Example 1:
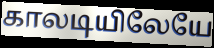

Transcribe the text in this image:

காலடியிலேயே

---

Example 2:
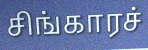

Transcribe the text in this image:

சிங்காரச்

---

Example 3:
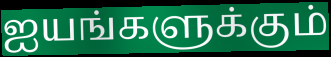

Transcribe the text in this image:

ஐயங்களுக்கும்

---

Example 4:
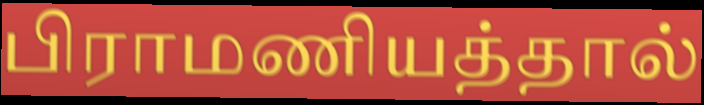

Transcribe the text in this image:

பிராமணியத்தால்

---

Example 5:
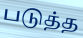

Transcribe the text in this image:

படுத்த